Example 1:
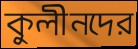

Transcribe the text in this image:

কুলীনদের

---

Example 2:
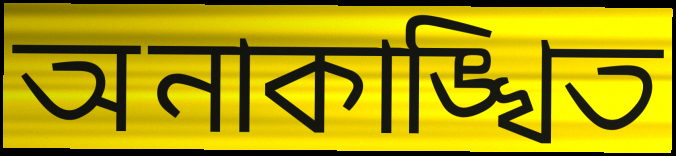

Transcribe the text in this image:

অনাকাঙ্খিত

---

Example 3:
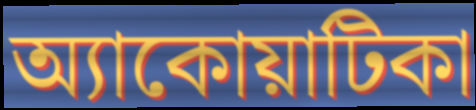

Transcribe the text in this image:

অ্যাকোয়াটিকা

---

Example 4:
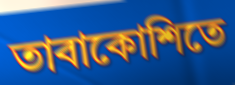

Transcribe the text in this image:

তাবাকোশিতে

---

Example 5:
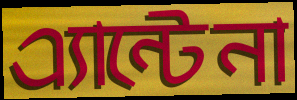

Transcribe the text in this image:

এ্যান্টেনা